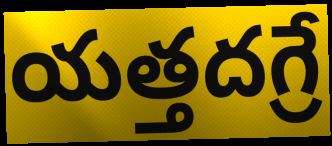
యత్తదగ్రే